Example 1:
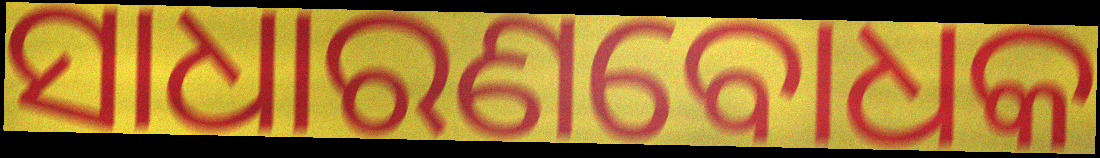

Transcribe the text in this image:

ସାଧାରଣବୋଧକ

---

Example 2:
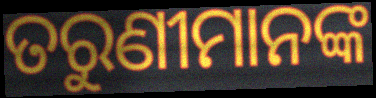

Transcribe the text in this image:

ତରୁଣୀମାନଙ୍କ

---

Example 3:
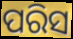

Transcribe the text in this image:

ପରିସ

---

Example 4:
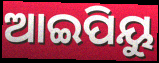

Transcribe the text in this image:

ଆଇପିୟୁ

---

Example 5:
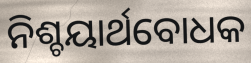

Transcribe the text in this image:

ନିଶ୍ଚୟାର୍ଥବୋଧକ